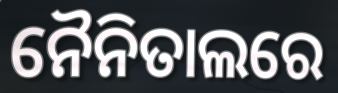
ନୈନିତାଲରେ